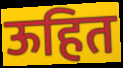
ऊहित